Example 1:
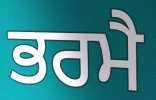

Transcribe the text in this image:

ਭਰਮੈ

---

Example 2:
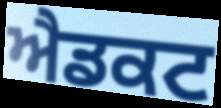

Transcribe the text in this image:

ਐਡਕਟ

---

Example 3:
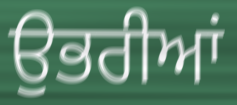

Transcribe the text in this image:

ਉਭਰੀਆਂ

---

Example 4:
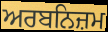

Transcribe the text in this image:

ਅਰਬਨਿਜ਼ਮ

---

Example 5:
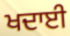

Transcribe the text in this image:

ਖਦਾਈ